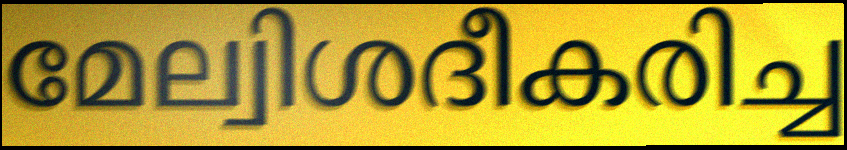
മേല്വിശദീകരിച്ച